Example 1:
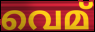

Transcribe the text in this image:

വെമ്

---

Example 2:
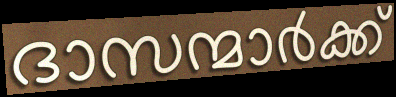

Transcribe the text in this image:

ദാസന്മാർക്ക്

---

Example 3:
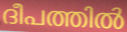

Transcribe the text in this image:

ദീപത്തിൽ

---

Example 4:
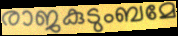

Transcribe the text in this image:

രാജകുടുംബമേ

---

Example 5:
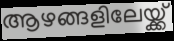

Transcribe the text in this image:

ആഴങ്ങളിലേയ്ക്ക്